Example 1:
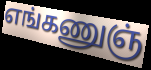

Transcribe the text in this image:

எங்கணுஞ்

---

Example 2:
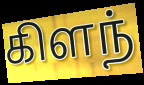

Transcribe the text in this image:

கிளந்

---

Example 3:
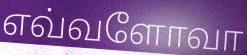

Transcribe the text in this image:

எவ்வளோவா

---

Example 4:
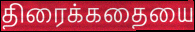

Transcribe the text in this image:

திரைக்கதையை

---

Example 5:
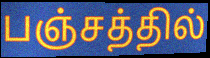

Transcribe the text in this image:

பஞ்சத்தில்